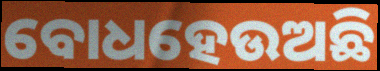
ବୋଧହେଉଅଛି